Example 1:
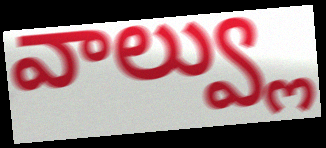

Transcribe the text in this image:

వాల్వ్లు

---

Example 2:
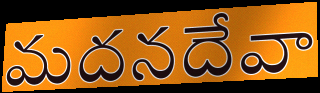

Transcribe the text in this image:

మదనదేవా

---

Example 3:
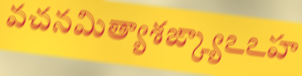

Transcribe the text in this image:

వచనమిత్యాశఙ్క్యాఽఽహ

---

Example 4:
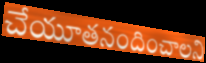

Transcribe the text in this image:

చేయూతనందించాలని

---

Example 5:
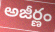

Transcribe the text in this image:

అజీర్ణం